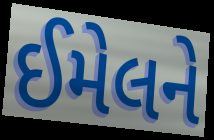
ઈમેલને